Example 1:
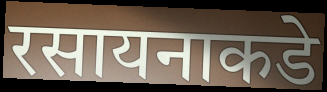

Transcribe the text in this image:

रसायनाकडे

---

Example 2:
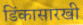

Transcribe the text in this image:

डिंकासारखी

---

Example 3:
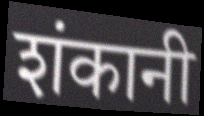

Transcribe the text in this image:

शंकानी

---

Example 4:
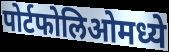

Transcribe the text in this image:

पोर्टफोलिओमध्ये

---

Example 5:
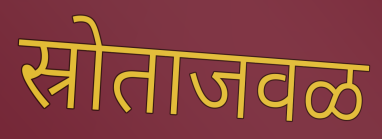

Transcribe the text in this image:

स्रोताजवळ